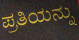
ಪ್ರತಿಯನ್ನು